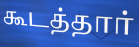
கூடத்தார்